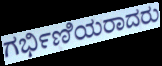
ಗರ್ಭಿಣಿಯರಾದರು